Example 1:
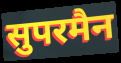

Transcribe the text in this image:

सुपरमैन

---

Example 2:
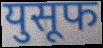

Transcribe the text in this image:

युसूफ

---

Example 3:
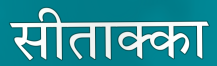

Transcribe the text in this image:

सीताक्का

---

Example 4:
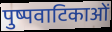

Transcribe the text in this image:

पुष्पवाटिकाओं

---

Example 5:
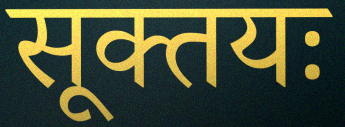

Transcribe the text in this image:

सूक्तयः